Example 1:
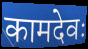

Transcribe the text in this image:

कामदेवः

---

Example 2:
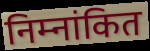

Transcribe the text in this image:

निम्नांकित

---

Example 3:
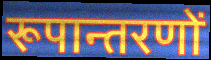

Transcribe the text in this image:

रूपान्तरणों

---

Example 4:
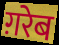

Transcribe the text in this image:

ग़रेब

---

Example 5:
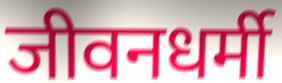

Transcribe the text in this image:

जीवनधर्मी